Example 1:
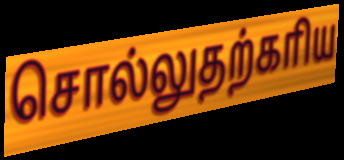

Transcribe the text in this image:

சொல்லுதற்கரிய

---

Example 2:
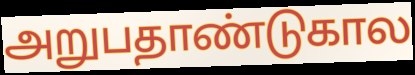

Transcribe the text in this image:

அறுபதாண்டுகால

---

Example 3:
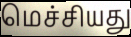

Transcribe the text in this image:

மெச்சியது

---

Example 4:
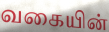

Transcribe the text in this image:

வகையின்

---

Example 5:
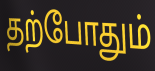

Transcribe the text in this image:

தற்போதும்